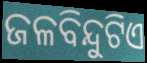
ଜଳବିନ୍ଦୁଟିଏ